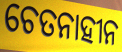
ଚେତନାହୀନ